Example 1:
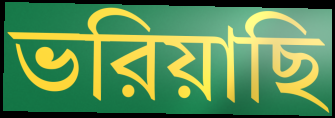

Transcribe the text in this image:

ভরিয়াছি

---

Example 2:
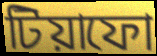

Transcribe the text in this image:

টিয়াফো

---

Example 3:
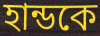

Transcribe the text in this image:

হান্ডকে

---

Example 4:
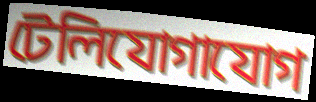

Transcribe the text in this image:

টেলিযোগাযোগ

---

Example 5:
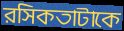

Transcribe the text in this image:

রসিকতাটাকে